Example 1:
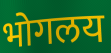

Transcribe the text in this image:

भोगलय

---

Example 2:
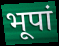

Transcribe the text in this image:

भूपां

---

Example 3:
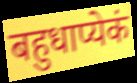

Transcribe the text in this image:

बहुधाप्येकं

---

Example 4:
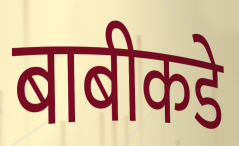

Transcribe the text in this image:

बाबीकडे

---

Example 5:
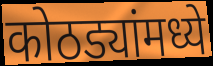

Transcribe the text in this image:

कोठड्यांमध्ये